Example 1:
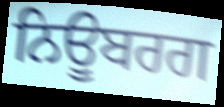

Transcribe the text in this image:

ਨਿਊਬਰਗ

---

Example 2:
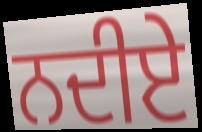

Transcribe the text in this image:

ਨਦੀਏ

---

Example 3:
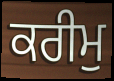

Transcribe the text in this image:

ਕਰੀਮੁ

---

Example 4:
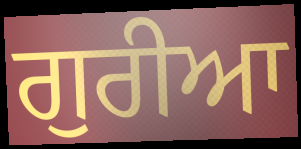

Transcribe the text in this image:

ਗੁਰੀਆ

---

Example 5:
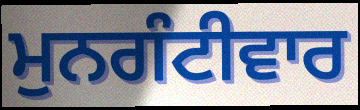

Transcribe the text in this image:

ਮੁਨਗੰਟੀਵਾਰ